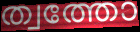
ത്വത്തോ